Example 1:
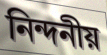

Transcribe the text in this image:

নিন্দনীয়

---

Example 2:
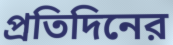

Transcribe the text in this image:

প্রতিদিনের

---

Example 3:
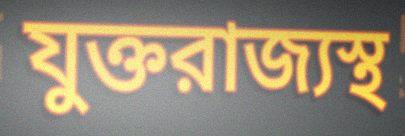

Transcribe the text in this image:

যুক্তরাজ্যস্থ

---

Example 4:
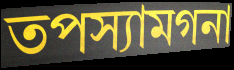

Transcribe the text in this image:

তপস্যামগনা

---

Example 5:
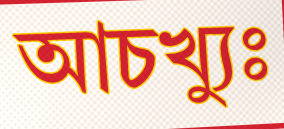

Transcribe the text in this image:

আচখ্যুঃ